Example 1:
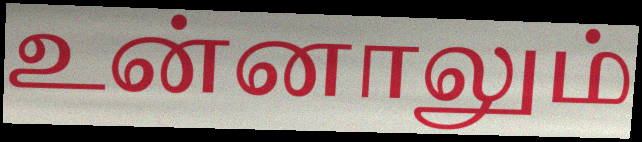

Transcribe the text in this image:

உன்னாலும்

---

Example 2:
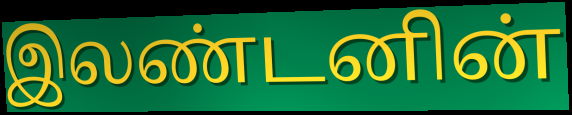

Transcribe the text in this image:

இலண்டனின்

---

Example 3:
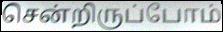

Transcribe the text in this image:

சென்றிருப்போம்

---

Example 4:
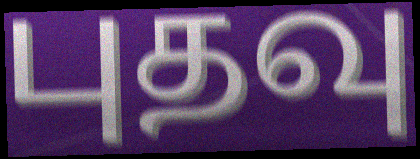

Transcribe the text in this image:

புதவு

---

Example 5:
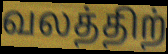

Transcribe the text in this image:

வலத்திற்